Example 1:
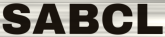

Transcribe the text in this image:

SABCL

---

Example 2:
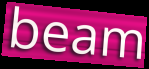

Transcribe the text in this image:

beam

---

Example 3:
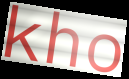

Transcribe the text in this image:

kho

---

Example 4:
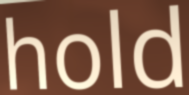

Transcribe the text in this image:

hold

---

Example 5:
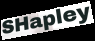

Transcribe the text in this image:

SHapley